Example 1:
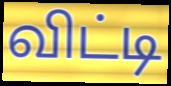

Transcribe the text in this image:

விட்டி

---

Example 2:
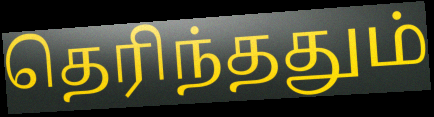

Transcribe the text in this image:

தெரிந்ததும்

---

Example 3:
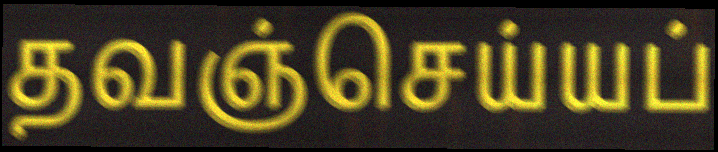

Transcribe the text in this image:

தவஞ்செய்யப்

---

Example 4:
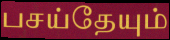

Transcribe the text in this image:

பசய்தேயும்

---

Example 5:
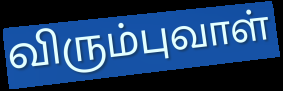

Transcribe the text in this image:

விரும்புவாள்